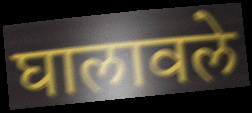
घालावले